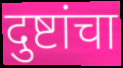
दुष्टांचा